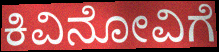
ಕಿವಿನೋವಿಗೆ